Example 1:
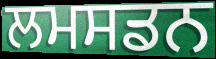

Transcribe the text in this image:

ਲਮਸਡਨ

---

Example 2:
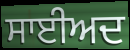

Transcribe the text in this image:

ਸਾਈਅਦ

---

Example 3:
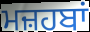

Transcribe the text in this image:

ਮਜ਼ਹਬਾਂ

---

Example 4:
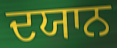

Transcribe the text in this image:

ਦਯਾਨ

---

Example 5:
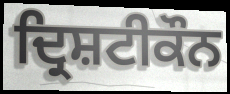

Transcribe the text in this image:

ਦ੍ਰਿਸ਼ਟੀਕੌਨ